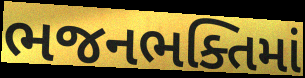
ભજનભક્તિમાં